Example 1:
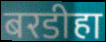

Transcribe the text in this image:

बरडीहा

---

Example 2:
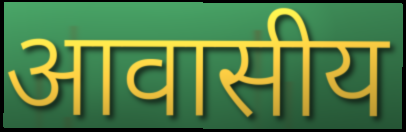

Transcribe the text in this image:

आवासीय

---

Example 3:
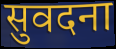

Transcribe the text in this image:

सुवदना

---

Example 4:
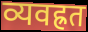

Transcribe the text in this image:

व्यवह्रत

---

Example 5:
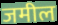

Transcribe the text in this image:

जमील